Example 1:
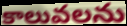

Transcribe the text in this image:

కాలువలను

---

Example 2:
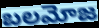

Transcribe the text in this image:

బలమోజ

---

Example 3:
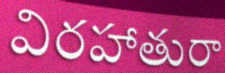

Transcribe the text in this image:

విరహాతురా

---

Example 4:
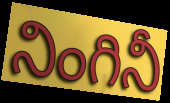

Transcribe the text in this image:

నింగినీ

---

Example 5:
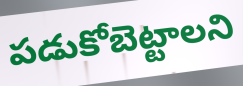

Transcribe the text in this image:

పడుకోబెట్టాలని